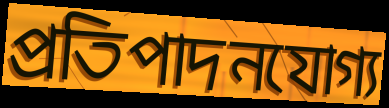
প্রতিপাদনযোগ্য